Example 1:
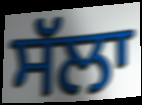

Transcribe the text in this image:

ਸੱਲਾ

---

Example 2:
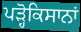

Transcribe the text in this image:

ਪੜ੍ਹੋਕਿਸਾਨਾਂ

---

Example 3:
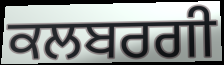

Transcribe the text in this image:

ਕਲਬਰਗੀ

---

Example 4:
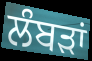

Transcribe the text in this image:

ਲੰਬੜਾਂ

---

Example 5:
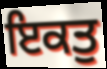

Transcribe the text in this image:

ਇਕਤੁ